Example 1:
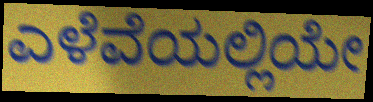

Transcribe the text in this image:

ಎಳೆವೆಯಲ್ಲಿಯೇ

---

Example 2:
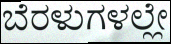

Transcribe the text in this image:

ಬೆರಳುಗಳಲ್ಲೇ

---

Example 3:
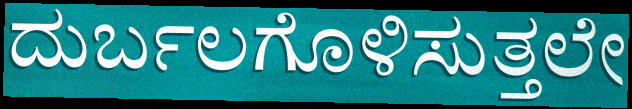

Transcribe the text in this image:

ದುರ್ಬಲಗೊಳಿಸುತ್ತಲೇ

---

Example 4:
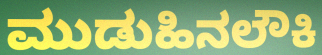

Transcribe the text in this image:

ಮುಡುಹಿನಲೌಕಿ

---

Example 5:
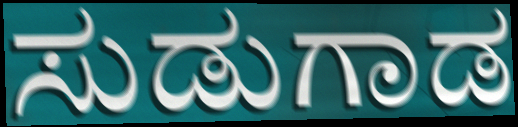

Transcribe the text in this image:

ಸುಡುಗಾಡ